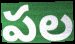
పల